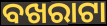
ବଖରାଟା